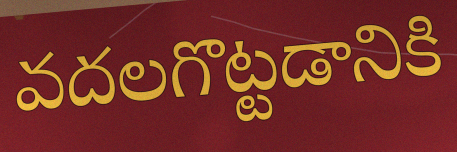
వదలగొట్టడానికి